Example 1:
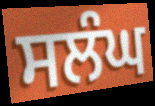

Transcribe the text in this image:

ਸਲੰਘ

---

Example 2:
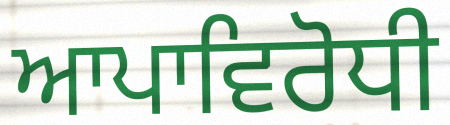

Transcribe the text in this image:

ਆਪਾਵਿਰੋਧੀ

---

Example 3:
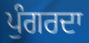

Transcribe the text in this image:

ਪੁੰਗਰਦਾ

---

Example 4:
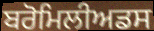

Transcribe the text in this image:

ਬਰੋਮਿਲੀਅਡਸ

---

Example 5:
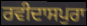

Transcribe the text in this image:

ਰਵੀਦਾਸਪੁਰਾ